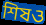
শিষও